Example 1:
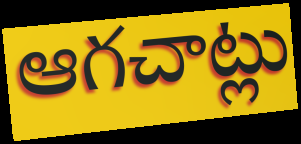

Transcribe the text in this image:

ఆగచాట్లు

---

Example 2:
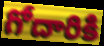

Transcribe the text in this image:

గోదారికి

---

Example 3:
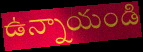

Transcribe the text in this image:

ఉన్నాయండి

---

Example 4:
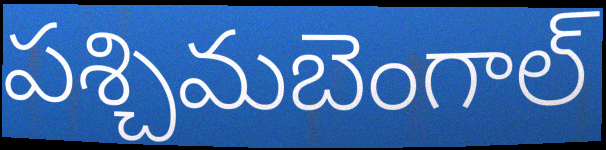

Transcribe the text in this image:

పశ్చిమబెంగాల్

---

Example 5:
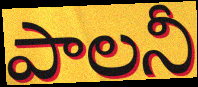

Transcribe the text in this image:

పాలనీ